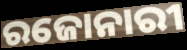
ରଜୋନାରୀ